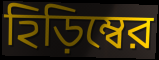
হিড়িম্বের